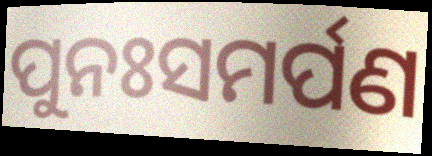
ପୁନଃସମର୍ପଣ